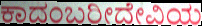
ಕಾದಂಬರೀದೇವಿಯ